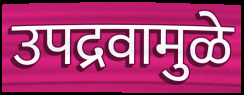
उपद्रवामुळे